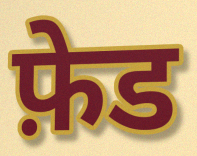
फ़ेड